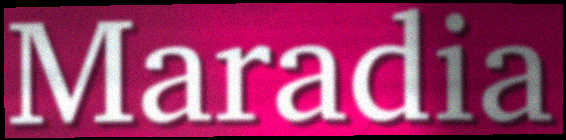
Maradia